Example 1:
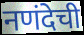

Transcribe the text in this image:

नणंदेची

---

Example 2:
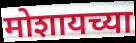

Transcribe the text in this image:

मोशायच्या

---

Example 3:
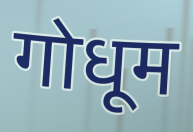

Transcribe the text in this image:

गोधूम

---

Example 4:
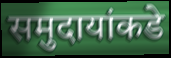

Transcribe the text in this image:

समुदायांकडे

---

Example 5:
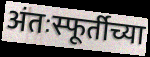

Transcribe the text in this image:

अंतःस्फूर्तीच्या